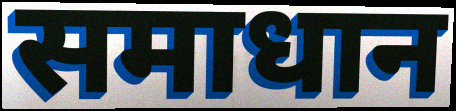
समाधान